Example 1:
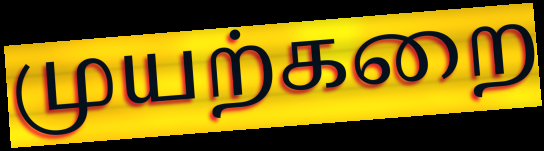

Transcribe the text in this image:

முயற்கறை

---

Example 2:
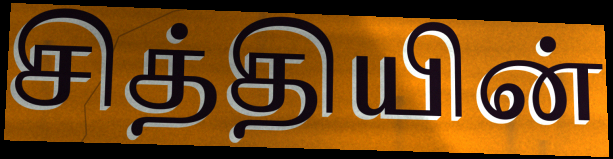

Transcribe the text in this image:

சித்தியின்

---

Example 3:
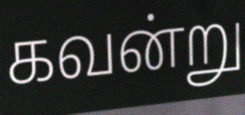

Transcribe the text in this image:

கவன்று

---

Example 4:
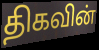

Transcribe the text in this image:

திகவின்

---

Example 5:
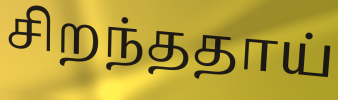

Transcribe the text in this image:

சிறந்ததாய்